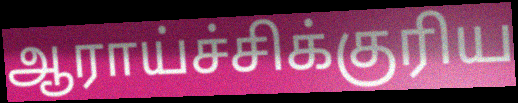
ஆராய்ச்சிக்குரிய